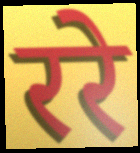
ररे